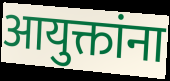
आयुक्तांना